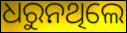
ଧରୁନଥିଲେ